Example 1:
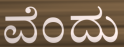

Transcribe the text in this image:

ವೆಂದು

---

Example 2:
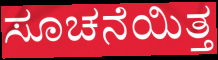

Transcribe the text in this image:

ಸೂಚನೆಯಿತ್ತ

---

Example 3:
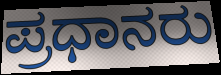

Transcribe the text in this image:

ಪ್ರಧಾನರು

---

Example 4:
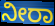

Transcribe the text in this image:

ನೀರಾ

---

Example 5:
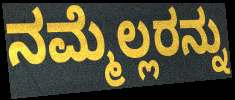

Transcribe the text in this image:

ನಮ್ಮೆಲ್ಲರನ್ನು